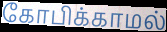
கோபிக்காமல்